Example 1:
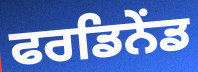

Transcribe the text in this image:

ਫਰਡਿਨੇਂਡ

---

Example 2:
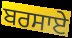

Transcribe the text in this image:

ਬਰਸਾਏ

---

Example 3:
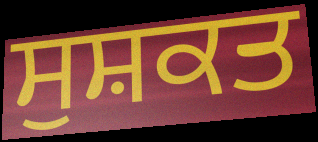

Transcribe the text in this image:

ਸੁਸ਼ਕਤ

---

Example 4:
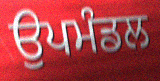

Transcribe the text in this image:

ਉਪਮੰਡਲ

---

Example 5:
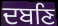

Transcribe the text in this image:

ਦਬਣਿ